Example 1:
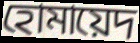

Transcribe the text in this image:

হোমায়েদ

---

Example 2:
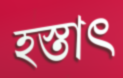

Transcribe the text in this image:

হস্তাৎ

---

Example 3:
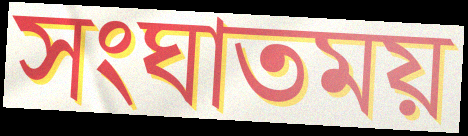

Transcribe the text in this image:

সংঘাতময়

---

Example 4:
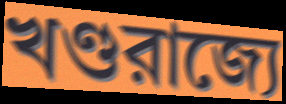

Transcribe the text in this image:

খণ্ডরাজ্যে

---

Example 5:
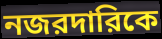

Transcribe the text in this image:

নজরদারিকে